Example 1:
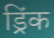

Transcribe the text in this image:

ड्रिंक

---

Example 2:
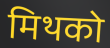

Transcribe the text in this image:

मिथको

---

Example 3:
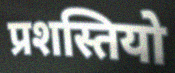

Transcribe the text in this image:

प्रशस्तियो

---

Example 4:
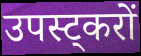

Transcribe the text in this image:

उपस्ट्करों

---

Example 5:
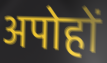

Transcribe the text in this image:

अपोहों